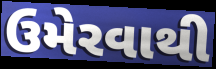
ઉમેરવાથી